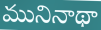
మునినాథా